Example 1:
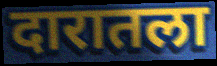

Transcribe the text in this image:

दारातला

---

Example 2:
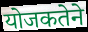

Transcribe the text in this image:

योजकतेने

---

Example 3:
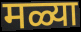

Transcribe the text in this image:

मळ्या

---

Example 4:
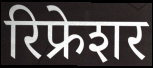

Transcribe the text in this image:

रिफ्रेशर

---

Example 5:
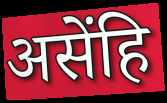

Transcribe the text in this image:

असेंहि